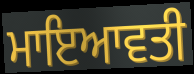
ਮਾਇਆਵਤੀ